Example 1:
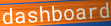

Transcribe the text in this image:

dashboard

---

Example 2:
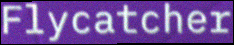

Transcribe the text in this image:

Flycatcher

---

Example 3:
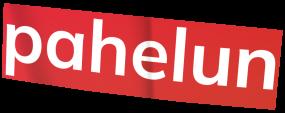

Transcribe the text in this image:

pahelun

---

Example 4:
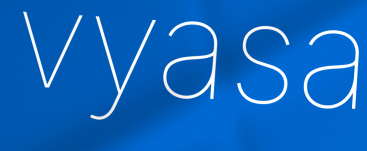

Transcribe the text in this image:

vyasa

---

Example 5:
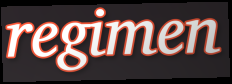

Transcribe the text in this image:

regimen